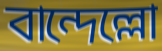
বান্দেল্লো